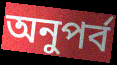
অনুপর্ব